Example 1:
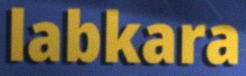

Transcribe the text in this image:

labkara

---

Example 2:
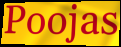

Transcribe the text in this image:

Poojas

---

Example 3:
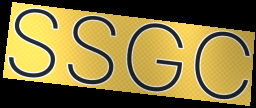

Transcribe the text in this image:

SSGC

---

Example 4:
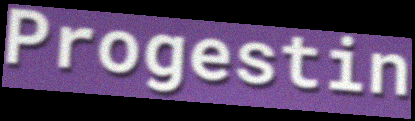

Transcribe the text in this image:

Progestin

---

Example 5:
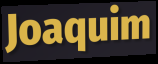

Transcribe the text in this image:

Joaquim